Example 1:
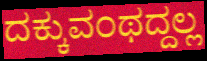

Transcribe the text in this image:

ದಕ್ಕುವಂಥದ್ದಲ್ಲ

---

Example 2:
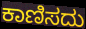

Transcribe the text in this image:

ಕಾಣಿಸದು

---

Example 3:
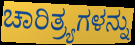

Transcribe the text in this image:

ಚಾರಿತ್ರ್ಯಗಳನ್ನು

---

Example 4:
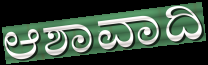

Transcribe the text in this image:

ಆಶಾವಾದಿ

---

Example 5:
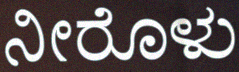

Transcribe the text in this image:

ನೀರೊಳು